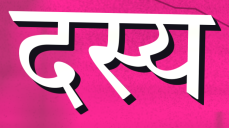
दस्य